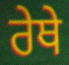
ਰੇਥੇ